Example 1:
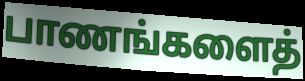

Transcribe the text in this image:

பாணங்களைத்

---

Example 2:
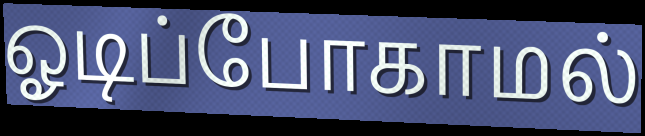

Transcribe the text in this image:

ஓடிப்போகாமல்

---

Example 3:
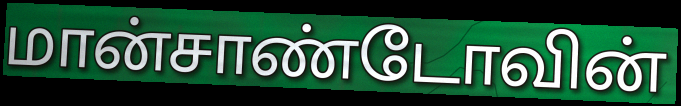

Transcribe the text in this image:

மான்சாண்டோவின்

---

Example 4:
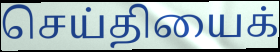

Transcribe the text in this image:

செய்தியைக்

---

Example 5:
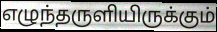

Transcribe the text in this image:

எழுந்தருளியிருக்கும்